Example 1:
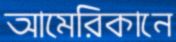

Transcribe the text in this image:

আমেরিকানে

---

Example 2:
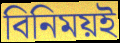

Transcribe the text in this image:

বিনিময়ই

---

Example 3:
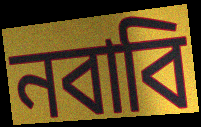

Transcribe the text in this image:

নবাবি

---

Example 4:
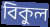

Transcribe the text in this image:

বিকুল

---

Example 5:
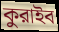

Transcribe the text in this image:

কুরাইব